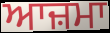
ਆਜ਼ਮਾ